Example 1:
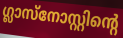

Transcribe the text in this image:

ഗ്ലാസ്നോസ്റ്റിന്റെ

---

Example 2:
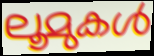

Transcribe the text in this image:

ലൂമുകൾ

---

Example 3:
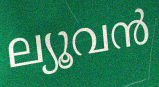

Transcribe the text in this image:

ല്യൂവൻ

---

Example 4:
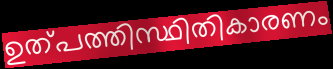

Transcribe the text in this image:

ഉത്പത്തിസ്ഥിതികാരണം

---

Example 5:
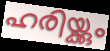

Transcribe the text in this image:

ഹരിയ്ക്കും